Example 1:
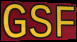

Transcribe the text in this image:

GSF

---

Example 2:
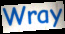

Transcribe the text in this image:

Wray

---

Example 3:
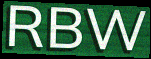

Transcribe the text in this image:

RBW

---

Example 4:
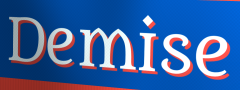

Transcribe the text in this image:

Demise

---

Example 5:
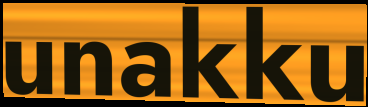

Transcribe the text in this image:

unakku